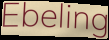
Ebeling